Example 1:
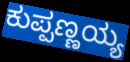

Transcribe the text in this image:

ಕುಪ್ಪಣ್ಣಯ್ಯ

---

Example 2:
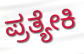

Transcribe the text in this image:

ಪ್ರತ್ಯೇಕಿ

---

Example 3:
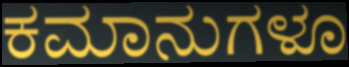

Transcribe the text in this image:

ಕಮಾನುಗಳೂ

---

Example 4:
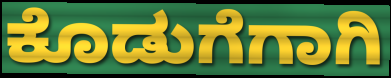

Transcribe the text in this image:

ಕೊಡುಗೆಗಾಗಿ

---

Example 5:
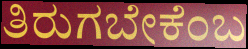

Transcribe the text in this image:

ತಿರುಗಬೇಕೆಂಬ